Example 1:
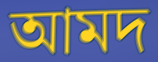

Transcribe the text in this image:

আমদ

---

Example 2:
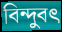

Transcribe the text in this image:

বিন্দুবৎ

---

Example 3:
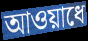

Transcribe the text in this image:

আওয়াধে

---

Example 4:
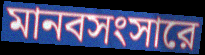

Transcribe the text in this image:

মানবসংসারে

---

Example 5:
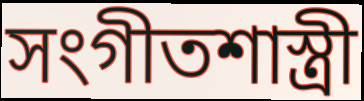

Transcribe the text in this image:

সংগীতশাস্ত্রী